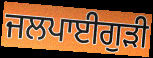
ਜਲਪਾਈਗੁਡ਼ੀ